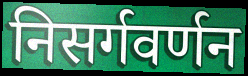
निसर्गवर्णन